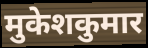
मुकेशकुमार